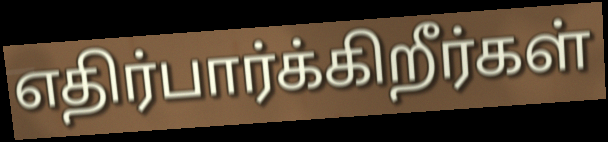
எதிர்பார்க்கிறீர்கள்